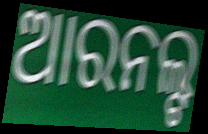
ଆରନଲ୍ଟ